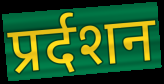
प्रर्दशन